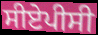
ਸੀਏਪੀਸੀ